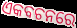
ଏକବଚନରେ